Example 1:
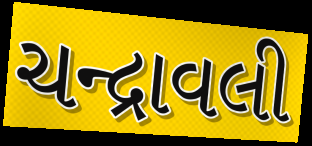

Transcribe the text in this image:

ચન્દ્રાવલી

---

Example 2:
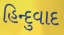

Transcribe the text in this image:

હિન્દુવાદ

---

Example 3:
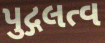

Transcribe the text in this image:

પુદ્ગલત્વ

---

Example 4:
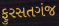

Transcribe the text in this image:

ફુરસતગંજ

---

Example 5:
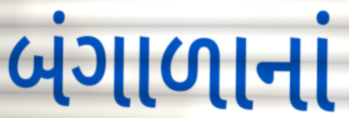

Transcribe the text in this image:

બંગાળાનાં